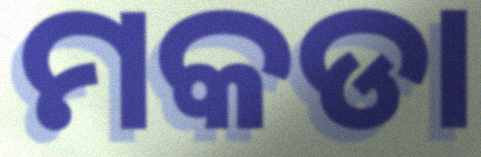
ମକଡା